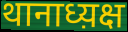
थानाध्य़क्ष